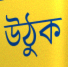
উঠুক